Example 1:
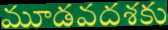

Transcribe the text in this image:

మూడవదశకు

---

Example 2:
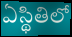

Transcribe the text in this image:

ఏస్థితిలో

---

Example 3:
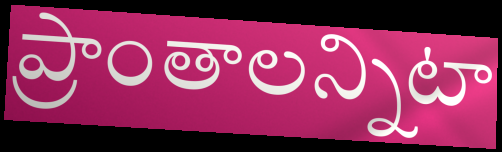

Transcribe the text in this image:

ప్రాంతాలన్నిటా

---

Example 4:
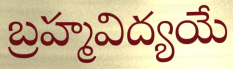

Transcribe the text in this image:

బ్రహ్మవిద్యయే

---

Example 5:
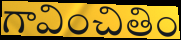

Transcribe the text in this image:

గావించితిం